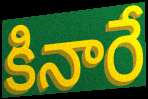
కినారే